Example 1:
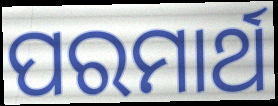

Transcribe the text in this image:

ପରମାର୍ଥ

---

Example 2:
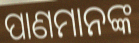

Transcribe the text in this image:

ପାଣମାନଙ୍କ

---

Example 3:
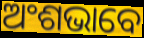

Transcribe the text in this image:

ଅଂଶଭାବେ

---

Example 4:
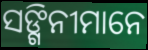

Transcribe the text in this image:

ସଙ୍ଗିନୀମାନେ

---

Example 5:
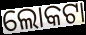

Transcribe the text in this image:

ଲୋକଟା